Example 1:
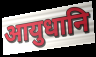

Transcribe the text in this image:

आयुधानि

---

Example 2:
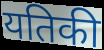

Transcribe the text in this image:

यतिकी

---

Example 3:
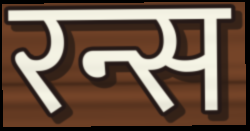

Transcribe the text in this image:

रन्स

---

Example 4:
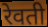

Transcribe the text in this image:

रेवती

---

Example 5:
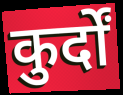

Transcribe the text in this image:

कुर्दों